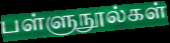
பள்ளுநூல்கள்